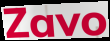
Zavo